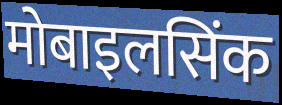
मोबाइलसिंक